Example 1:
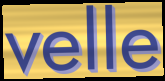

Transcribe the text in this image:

velle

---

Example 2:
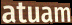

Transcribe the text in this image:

atuam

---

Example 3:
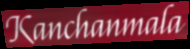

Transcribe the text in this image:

Kanchanmala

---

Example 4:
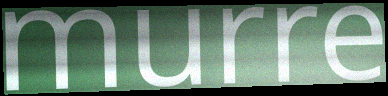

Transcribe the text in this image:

murre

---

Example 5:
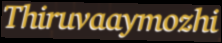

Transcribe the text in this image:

Thiruvaaymozhi